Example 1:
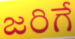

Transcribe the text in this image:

జరిగే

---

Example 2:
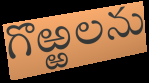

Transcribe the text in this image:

గొఱ్ఱలను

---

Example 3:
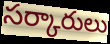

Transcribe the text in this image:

సర్కారులు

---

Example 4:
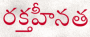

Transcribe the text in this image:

రక్తహీనత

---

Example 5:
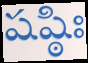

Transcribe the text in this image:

షష్ఠిః